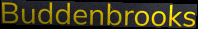
Buddenbrooks